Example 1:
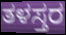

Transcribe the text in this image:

ತಳಸ್ತರ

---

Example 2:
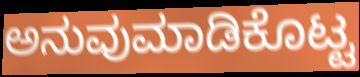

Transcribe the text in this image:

ಅನುವುಮಾಡಿಕೊಟ್ಟ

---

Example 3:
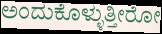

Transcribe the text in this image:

ಅಂದುಕೊಳ್ಳುತ್ತೀರೋ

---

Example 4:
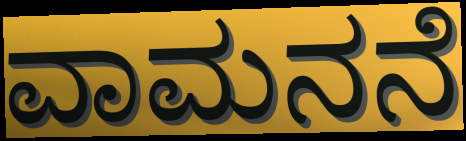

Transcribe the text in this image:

ವಾಮನನೆ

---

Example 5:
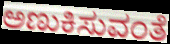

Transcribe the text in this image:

ಅಣುಕಿಸುವಂತೆ